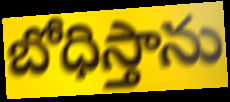
బోధిస్తాను